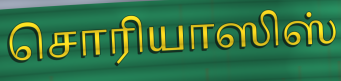
சொரியாஸிஸ்